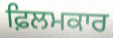
ਫ਼ਿਲਮਕਾਰ